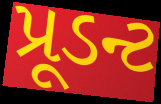
પ્રૂડન્ટ